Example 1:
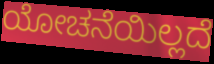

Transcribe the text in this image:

ಯೋಚನೆಯಿಲ್ಲದೆ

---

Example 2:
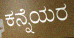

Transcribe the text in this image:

ಕನ್ನೆಯರ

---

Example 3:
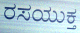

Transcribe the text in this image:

ರಸಯುಕ್ತ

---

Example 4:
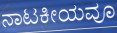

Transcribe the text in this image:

ನಾಟಕೀಯವೂ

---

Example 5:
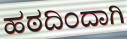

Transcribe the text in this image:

ಹಠದಿಂದಾಗಿ